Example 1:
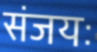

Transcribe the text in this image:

संजयः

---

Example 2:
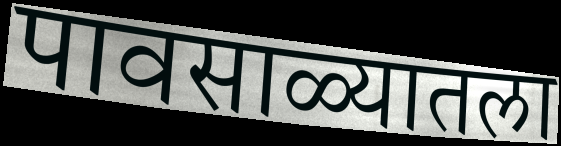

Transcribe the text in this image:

पावसाळ्यातला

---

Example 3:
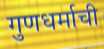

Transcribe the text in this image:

गुणधर्माची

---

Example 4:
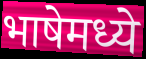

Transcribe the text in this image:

भाषेमध्ये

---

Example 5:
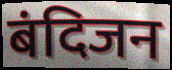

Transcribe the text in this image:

बंदिजन